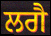
ਲਗੈ